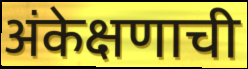
अंकेक्षणाची